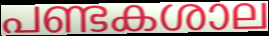
പണ്ടകശാല